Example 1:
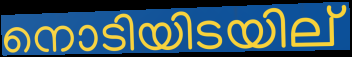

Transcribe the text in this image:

നൊടിയിടയില്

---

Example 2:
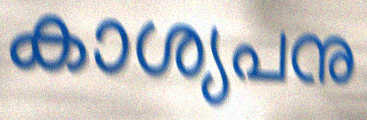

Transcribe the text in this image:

കാശ്യപനു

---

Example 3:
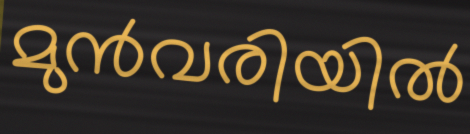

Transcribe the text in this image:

മുൻവരിയിൽ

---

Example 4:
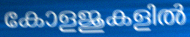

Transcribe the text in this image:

കോളജുകളിൽ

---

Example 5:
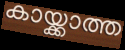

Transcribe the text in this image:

കായ്ക്കാത്ത